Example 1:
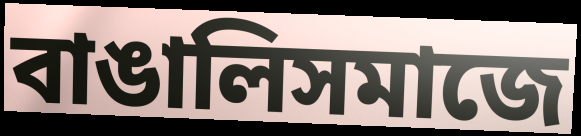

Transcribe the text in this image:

বাঙালিসমাজে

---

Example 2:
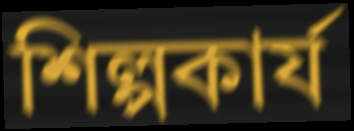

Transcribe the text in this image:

শিল্পকার্য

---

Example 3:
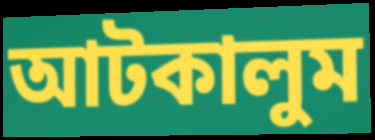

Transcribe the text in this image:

আটকালুম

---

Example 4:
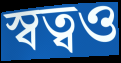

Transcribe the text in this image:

স্বত্বও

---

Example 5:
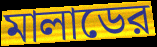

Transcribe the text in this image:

মালাডের